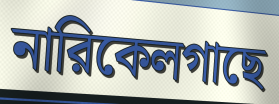
নারিকেলগাছে